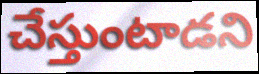
చేస్తుంటాడని